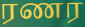
ரணர